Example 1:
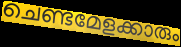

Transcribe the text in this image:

ചെണ്ടമേളക്കാരും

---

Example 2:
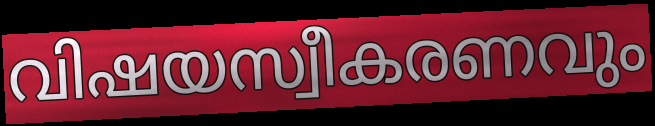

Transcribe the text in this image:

വിഷയസ്വീകരണവും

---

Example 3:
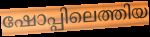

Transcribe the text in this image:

ഷോപ്പിലെത്തിയ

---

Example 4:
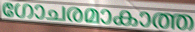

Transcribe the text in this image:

ഗോചരമാകാത്ത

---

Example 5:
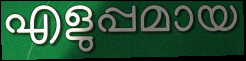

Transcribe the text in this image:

എളുപ്പമായ